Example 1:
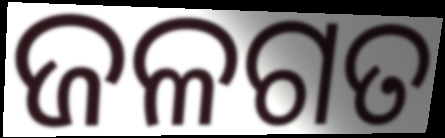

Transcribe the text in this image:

ଜଳଗତ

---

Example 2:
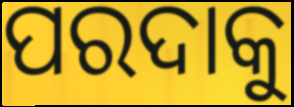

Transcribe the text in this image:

ପରଦାକୁ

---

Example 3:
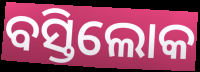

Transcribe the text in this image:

ବସ୍ତିଲୋକ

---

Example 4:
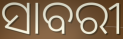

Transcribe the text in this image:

ସାବରୀ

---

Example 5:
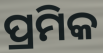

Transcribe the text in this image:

ପ୍ରମିକ